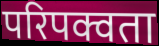
परिपक्वता